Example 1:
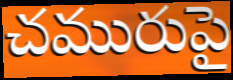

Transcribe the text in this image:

చమురుపై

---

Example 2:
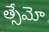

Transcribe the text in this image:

త్సేమో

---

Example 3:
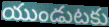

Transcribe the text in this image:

యుండుటకు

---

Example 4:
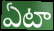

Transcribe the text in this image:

ఏటా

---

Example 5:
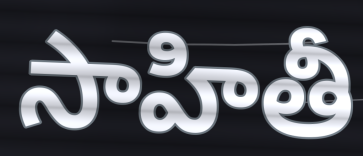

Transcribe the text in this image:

సాహితీ